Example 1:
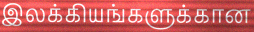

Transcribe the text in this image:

இலக்கியங்களுக்கான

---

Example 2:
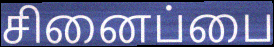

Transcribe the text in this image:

சினைப்பை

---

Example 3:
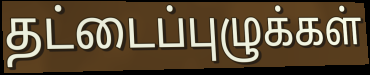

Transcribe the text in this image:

தட்டைப்புழுக்கள்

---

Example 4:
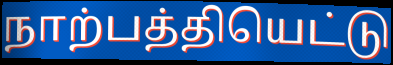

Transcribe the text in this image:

நாற்பத்தியெட்டு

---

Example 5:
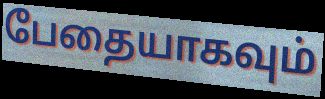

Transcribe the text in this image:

பேதையாகவும்